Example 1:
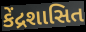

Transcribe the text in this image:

કેંદ્રશાસિત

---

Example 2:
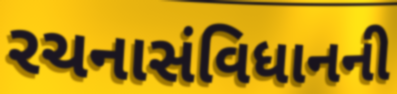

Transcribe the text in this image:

રચનાસંવિધાનની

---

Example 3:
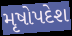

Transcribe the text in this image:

મૃષોપદેશ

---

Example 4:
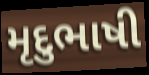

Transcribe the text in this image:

મૃદુભાષી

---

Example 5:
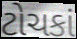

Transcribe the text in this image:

ટોચકાં